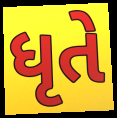
ધૃતે